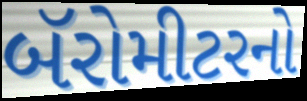
બૅરોમીટરનો